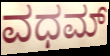
ವಧಮ್